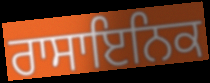
ਰਾਸਾਇਨਿਕ